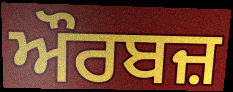
ਔਰਬਜ਼